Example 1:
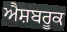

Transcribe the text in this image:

ਐਸ਼ਬਰੂਕ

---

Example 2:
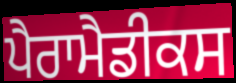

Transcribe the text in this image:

ਪੈਰਾਮੈਡੀਕਸ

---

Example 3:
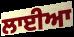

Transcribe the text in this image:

ਲਾਈਆ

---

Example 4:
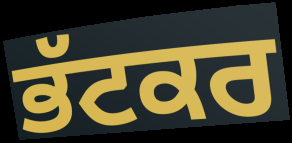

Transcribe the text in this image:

ਭੱਟਕਰ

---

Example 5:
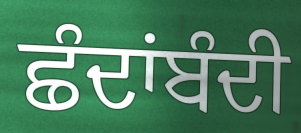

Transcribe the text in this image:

ਛੰਦਾਂਬੰਦੀ